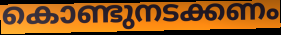
കൊണ്ടുനടക്കണം